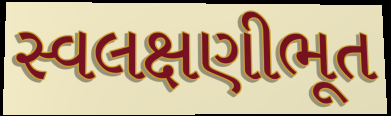
સ્વલક્ષણીભૂત